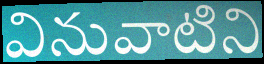
వినువాటిని